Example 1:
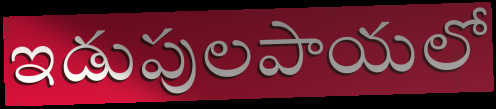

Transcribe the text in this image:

ఇడుపులపాయలో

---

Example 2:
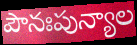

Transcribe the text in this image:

పౌనఃపున్యాల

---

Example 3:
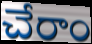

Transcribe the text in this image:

చేరాం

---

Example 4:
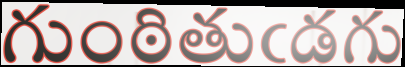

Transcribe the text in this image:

గుంఠితుఁడగు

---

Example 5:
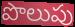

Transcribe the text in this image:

పొలుపు